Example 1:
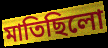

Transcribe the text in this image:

মাতিছিলো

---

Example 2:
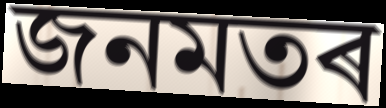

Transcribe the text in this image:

জনমতৰ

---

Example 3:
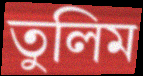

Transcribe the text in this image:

তুলিম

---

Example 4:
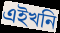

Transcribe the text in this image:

এইখনি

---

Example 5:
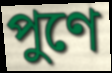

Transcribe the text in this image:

পুণে